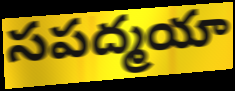
సపద్మయా